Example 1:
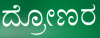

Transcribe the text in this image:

ದ್ರೋಣರ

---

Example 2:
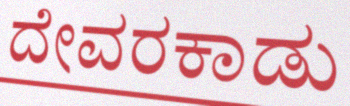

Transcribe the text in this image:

ದೇವರಕಾಡು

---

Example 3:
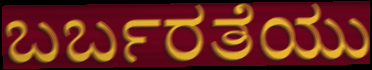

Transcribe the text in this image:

ಬರ್ಬರತೆಯು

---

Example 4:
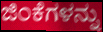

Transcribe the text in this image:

ಜಿಂಕೆಗಳನ್ನು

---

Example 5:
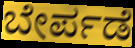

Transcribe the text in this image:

ಬೇರ್ಪಡೆ